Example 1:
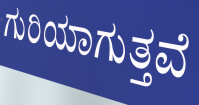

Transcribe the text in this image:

ಗುರಿಯಾಗುತ್ತವೆ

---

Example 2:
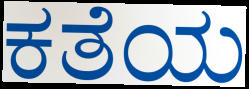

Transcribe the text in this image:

ಕತೆಯ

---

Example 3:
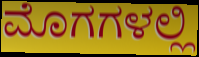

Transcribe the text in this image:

ಮೊಗಗಳಲ್ಲಿ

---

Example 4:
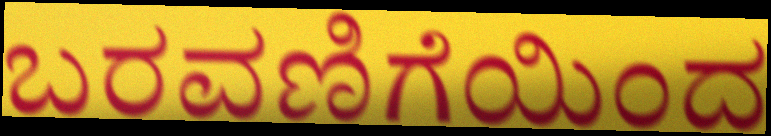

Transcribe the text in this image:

ಬರವಣಿಗೆಯಿಂದ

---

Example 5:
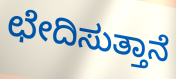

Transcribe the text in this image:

ಛೇದಿಸುತ್ತಾನೆ